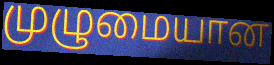
முழுமையான